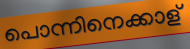
പൊന്നിനെക്കാള്